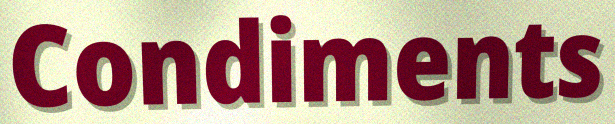
Condiments